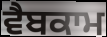
ਵੈਬਕਾਮ